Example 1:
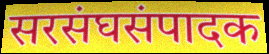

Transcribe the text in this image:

सरसंघसंपादक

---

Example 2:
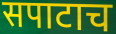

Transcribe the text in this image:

सपाटाच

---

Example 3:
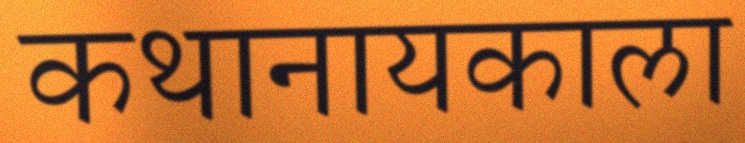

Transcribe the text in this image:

कथानायकाला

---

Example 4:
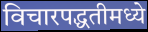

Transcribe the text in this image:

विचारपद्धतीमध्ये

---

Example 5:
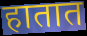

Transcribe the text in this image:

हातात